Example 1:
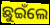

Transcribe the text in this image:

ଛୁଇଁଲେ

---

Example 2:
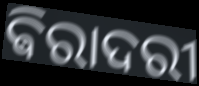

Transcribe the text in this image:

ଵିରାଦରୀ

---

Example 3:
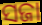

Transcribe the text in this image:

ସଜା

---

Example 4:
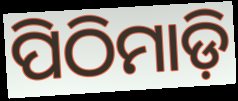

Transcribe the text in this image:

ପିଠିମାଡ଼ି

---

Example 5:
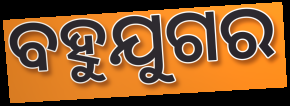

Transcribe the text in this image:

ବହୁଯୁଗର